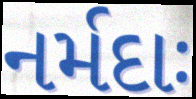
નર્મદાઃ